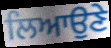
ਲਿਆਉਣੇ